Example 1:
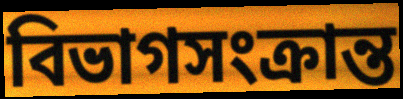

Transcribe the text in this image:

বিভাগসংক্রান্ত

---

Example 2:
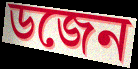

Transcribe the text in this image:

ডজেন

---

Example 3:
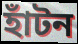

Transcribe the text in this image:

হাঁটন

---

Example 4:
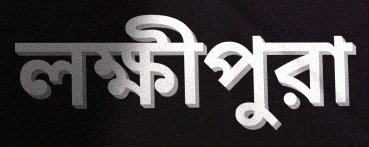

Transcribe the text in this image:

লক্ষীপুরা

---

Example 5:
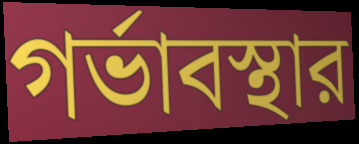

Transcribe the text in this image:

গর্ভাবস্থার